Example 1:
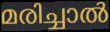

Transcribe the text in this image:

മരിച്ചാൽ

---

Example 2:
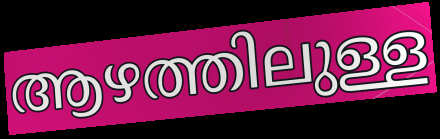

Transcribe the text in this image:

ആഴത്തിലുള്ള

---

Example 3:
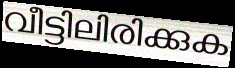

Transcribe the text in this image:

വീട്ടിലിരിക്കുക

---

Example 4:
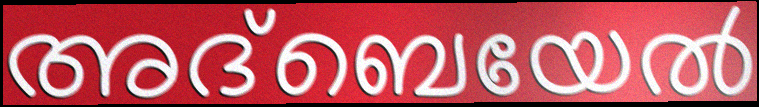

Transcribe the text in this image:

അദ്ബെയേൽ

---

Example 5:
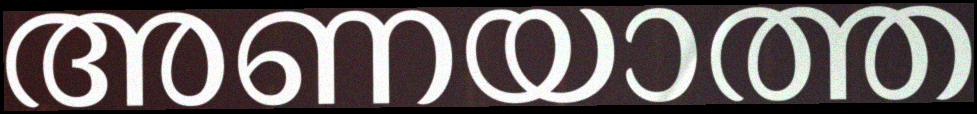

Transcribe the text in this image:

അണയാത്ത